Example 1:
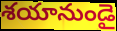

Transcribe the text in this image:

శయానుండై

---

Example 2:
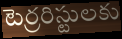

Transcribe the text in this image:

టెర్రరిస్టులకు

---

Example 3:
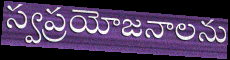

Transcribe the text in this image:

స్వప్రయోజనాలను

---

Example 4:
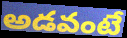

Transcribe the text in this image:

అడవంటే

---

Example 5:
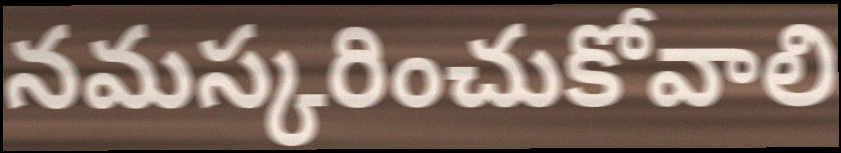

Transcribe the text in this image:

నమస్కరించుకోవాలి